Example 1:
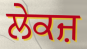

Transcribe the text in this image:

ਲੇਕਜ਼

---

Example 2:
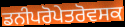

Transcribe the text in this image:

ਡਨੀਪਰੋਪੇਤਰੋਵਸਕ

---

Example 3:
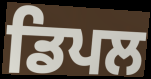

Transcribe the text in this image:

ਡਿਪਲ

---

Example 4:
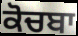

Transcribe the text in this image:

ਕੋਚਬਾ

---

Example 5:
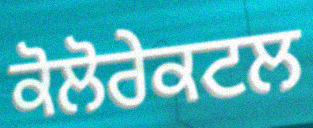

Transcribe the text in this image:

ਕੋਲੋਰੇਕਟਲ